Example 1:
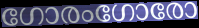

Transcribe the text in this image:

ഗോരംഗോരോ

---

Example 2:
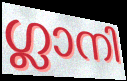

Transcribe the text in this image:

ഗ്ലാനി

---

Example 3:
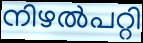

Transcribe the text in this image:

നിഴൽപറ്റി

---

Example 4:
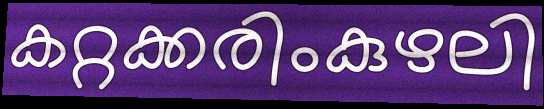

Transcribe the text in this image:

കറ്റക്കരിംകുഴലി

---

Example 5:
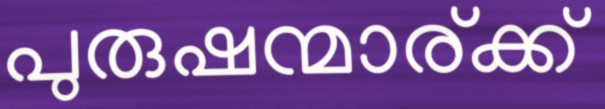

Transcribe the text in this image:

പുരുഷന്മാര്ക്ക്